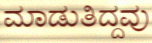
ಮಾಡುತಿದ್ದವು